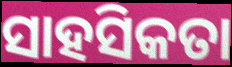
ସାହସିକତା